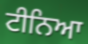
ਟੀਨਿਆ